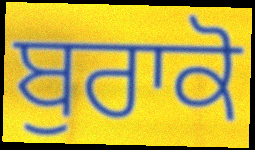
ਬੁਰਾਕੋ